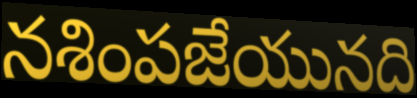
నశింపజేయునది